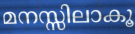
മനസ്സിലാകൂ